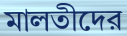
মালতীদের